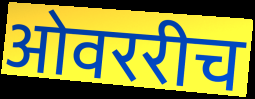
ओवररीच